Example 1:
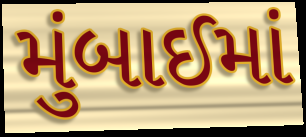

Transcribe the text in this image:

મુંબાઈમાં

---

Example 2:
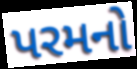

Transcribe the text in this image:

પરમનો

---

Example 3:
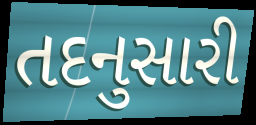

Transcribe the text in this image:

તદનુસારી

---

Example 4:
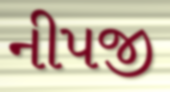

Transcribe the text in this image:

નીપજી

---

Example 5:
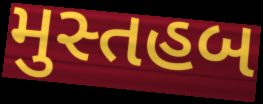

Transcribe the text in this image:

મુસ્તહબ